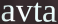
avta